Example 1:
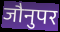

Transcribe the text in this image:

जौनुपर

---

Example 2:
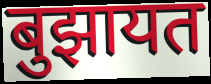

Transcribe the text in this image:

बुझायत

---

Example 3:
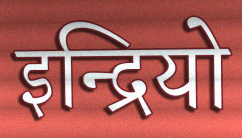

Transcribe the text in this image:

इन्द्रियो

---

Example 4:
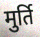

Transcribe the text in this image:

मुर्ति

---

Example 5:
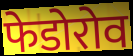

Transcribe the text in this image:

फेडोरोव